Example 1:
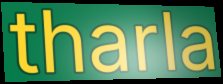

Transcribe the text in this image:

tharla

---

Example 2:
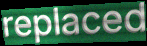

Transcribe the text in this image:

replaced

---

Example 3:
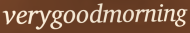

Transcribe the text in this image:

verygoodmorning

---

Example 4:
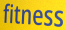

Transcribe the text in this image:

fitness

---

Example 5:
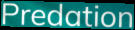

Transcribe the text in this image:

Predation